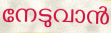
നേടുവാൻ